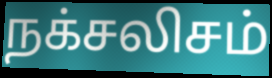
நக்சலிசம்